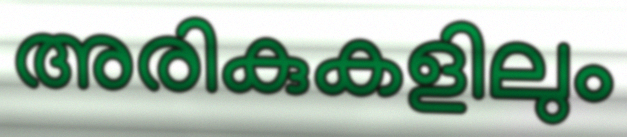
അരികുകളിലും